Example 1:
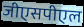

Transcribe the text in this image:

जीएसपीएल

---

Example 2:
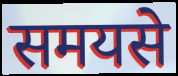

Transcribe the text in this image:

समयसे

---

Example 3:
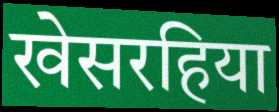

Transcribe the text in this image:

खेसरहिया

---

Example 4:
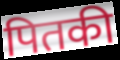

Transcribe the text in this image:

पितकी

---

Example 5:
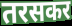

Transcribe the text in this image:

तरसकर